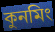
কুনমিং